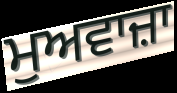
ਮੁਅਵਾਜ਼ਾ